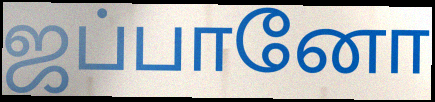
ஜப்பானோ